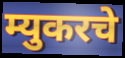
म्युकरचे